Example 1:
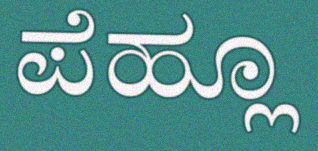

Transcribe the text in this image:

ಪೆಹ್ಲೂ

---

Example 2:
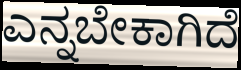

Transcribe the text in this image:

ಎನ್ನಬೇಕಾಗಿದೆ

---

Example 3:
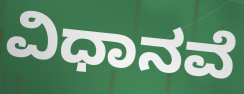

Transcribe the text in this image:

ವಿಧಾನವೆ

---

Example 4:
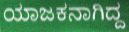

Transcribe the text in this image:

ಯಾಜಕನಾಗಿದ್ದ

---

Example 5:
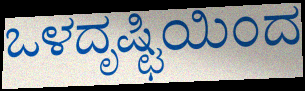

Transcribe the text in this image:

ಒಳದೃಷ್ಟಿಯಿಂದ